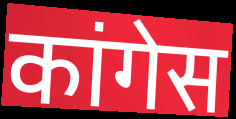
कांगेस